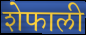
शेफाली